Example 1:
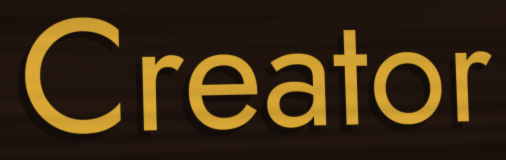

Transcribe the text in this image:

Creator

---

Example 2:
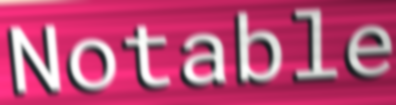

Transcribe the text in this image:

Notable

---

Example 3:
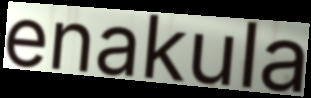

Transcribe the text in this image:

enakula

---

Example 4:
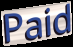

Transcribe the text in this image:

Paid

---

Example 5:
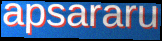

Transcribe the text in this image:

apsararu